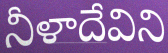
నీళాదేవిని